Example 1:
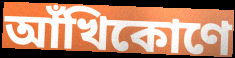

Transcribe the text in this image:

আঁখিকোণে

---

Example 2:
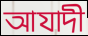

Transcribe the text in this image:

আযাদী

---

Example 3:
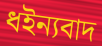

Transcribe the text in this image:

ধইন্যবাদ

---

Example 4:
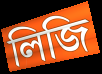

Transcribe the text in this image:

লিজি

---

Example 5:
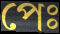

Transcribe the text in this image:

পেঃ